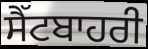
ਸੈੱਟਬਾਹਰੀ